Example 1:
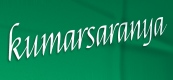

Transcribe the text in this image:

kumarsaranya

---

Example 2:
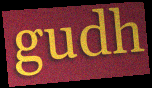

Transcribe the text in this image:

gudh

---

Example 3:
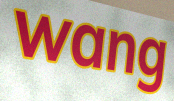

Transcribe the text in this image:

wang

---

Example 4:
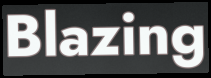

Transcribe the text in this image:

Blazing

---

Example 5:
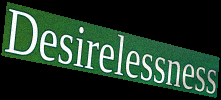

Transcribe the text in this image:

Desirelessness